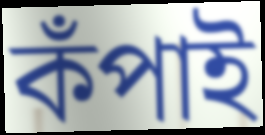
কঁপাই